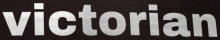
victorian